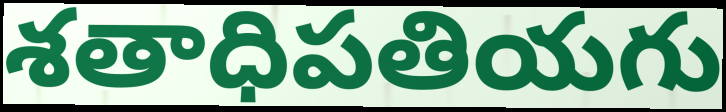
శతాధిపతియగు